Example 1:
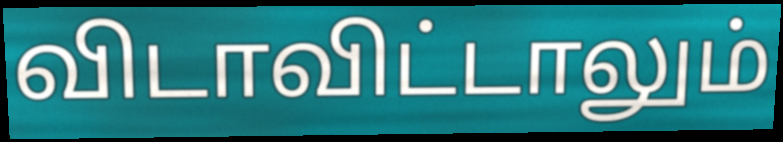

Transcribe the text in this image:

விடாவிட்டாலும்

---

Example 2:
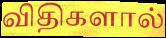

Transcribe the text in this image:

விதிகளால்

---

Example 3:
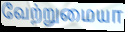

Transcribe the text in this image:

வேற்றுமையா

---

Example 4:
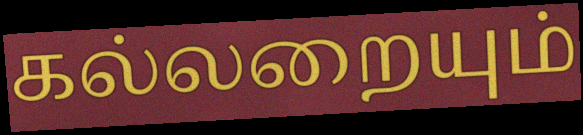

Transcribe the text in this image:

கல்லறையும்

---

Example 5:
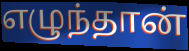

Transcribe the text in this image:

எழுந்தான்